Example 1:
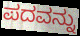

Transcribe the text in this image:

ಪದವನ್ನು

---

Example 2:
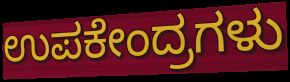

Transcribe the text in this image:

ಉಪಕೇಂದ್ರಗಳು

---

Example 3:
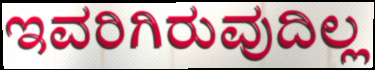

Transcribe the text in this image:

ಇವರಿಗಿರುವುದಿಲ್ಲ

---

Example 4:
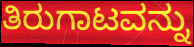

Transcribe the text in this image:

ತಿರುಗಾಟವನ್ನು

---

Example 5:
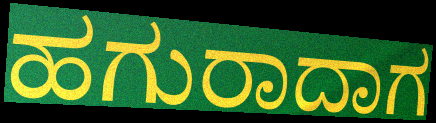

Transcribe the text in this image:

ಹಗುರಾದಾಗ